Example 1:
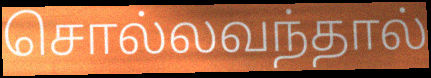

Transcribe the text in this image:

சொல்லவந்தால்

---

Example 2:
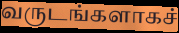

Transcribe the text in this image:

வருடங்களாகச்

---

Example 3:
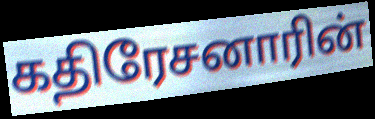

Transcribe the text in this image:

கதிரேசனாரின்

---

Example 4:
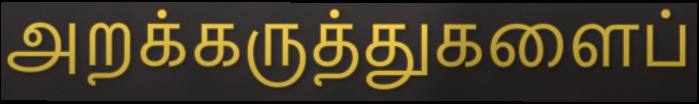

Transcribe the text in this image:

அறக்கருத்துகளைப்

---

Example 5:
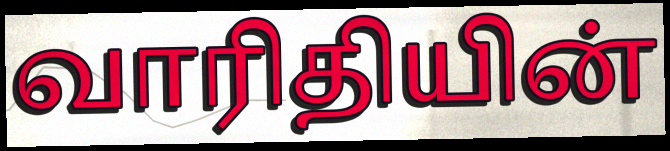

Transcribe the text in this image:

வாரிதியின்